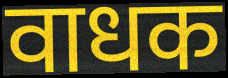
वाधक